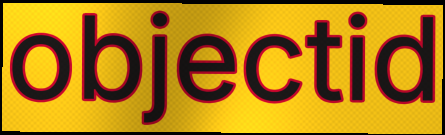
objectid